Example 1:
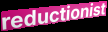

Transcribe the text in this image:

reductionist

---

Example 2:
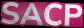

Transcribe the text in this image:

SACP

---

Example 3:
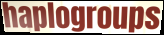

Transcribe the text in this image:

haplogroups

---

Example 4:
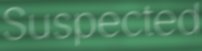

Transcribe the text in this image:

Suspected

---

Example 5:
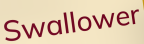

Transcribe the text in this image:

Swallower